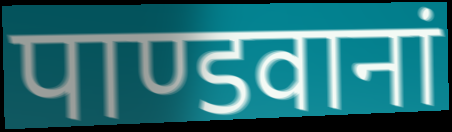
पाण्डवानां